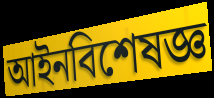
আইনবিশেষজ্ঞ